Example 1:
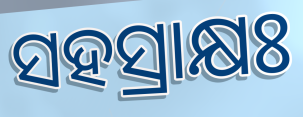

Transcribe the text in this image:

ସହସ୍ରାକ୍ଷଃ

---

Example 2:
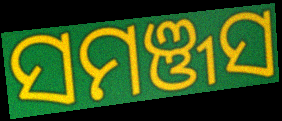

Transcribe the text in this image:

ସମଞ୍ଜସ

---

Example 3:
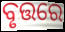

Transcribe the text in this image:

ବୃତ୍ତରେ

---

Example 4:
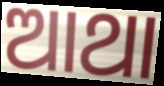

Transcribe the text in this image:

ଆଥା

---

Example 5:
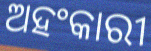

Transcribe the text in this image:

ଅହଂକାରୀ